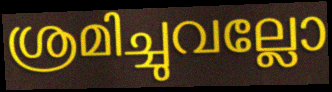
ശ്രമിച്ചുവല്ലോ